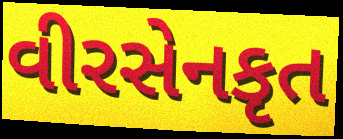
વીરસેનકૃત